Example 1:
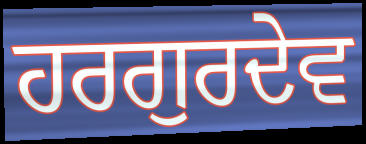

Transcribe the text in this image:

ਹਰਗੁਰਦੇਵ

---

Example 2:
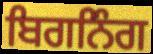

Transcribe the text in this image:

ਬਿਗਨਿੰਗ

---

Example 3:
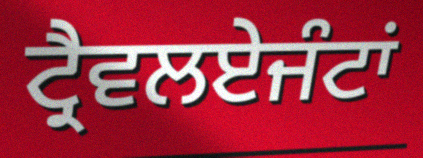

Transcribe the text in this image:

ਟ੍ਰੈਵਲਏਜੰਟਾਂ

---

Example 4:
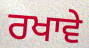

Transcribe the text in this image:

ਰਖਾਵੇ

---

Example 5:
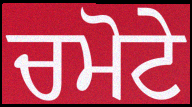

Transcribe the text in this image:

ਚਮੋਟੇ